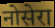
नोसेरा